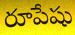
రూపేషు